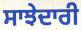
ਸਾਝੇਦਾਰੀ